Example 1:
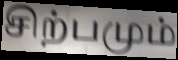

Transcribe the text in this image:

சிற்பமும்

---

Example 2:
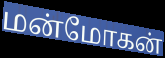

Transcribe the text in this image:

மன்மோகன்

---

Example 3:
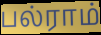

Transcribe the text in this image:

பல்ராம்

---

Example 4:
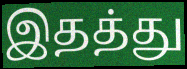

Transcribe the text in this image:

இதத்து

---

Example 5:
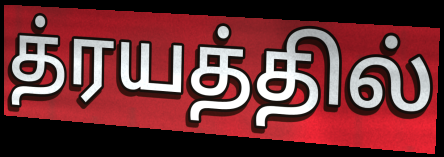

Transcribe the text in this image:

த்ரயத்தில்